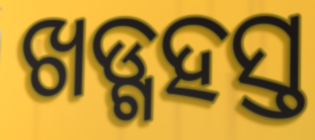
ଖଡ୍ଗହସ୍ତ